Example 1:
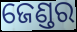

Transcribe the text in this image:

ଜେଣ୍ଡର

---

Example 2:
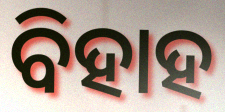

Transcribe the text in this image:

ବିହାହ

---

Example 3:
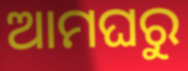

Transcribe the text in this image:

ଆମଘରୁ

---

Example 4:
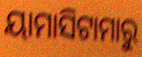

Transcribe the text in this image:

ୟାମାସିଟାମାରୁ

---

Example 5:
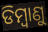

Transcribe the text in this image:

ଡିମ୍ୱାଣୁ